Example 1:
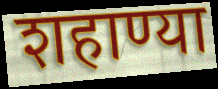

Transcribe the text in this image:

शहाण्या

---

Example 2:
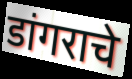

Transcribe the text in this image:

डांगराचे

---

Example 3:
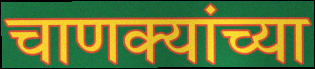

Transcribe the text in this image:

चाणक्यांच्या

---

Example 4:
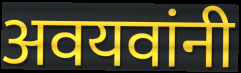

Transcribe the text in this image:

अवयवांनी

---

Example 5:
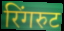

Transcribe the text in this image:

रिंगरुट